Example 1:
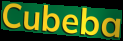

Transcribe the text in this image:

Cubeba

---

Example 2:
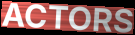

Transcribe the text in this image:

ACTORS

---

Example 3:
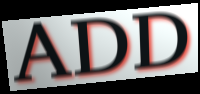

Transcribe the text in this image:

ADD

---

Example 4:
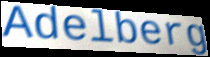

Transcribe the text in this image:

Adelberg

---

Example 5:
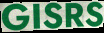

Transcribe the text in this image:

GISRS